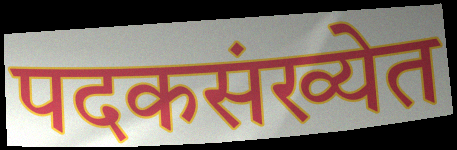
पदकसंख्येत